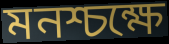
মনশ্চক্ষে